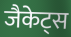
जैकेट्स